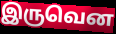
இருவென